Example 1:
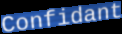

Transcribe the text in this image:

Confidant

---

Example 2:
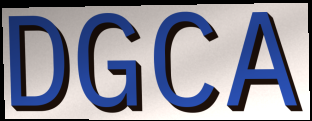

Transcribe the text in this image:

DGCA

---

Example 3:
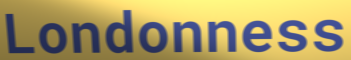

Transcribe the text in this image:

Londonness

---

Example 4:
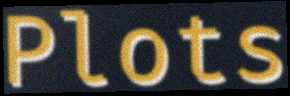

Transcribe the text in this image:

Plots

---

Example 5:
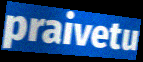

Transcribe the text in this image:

praivetu